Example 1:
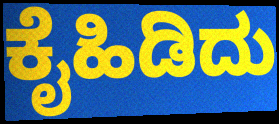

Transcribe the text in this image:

ಕೈಹಿಡಿದು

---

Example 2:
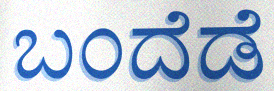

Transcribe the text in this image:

ಬಂದೆಡೆ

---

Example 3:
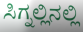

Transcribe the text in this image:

ಸಿಗ್ನಲ್ಲಿನಲ್ಲಿ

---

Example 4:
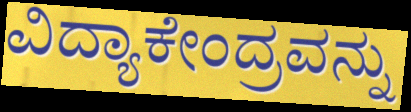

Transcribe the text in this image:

ವಿದ್ಯಾಕೇಂದ್ರವನ್ನು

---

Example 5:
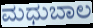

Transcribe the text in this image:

ಮಧುಬಾಲ